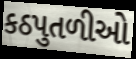
કઠપુતળીઓ